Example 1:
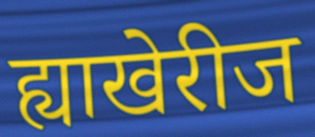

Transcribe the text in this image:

ह्याखेरीज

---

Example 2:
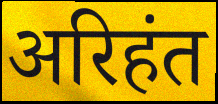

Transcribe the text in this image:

अरिहंत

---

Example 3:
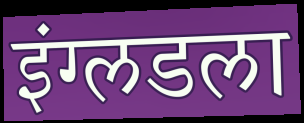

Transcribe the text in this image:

इंग्लडला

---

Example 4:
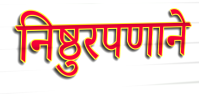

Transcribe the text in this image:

निष्ठुरपणाने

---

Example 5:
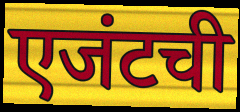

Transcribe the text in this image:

एजंटची